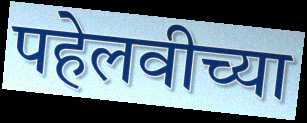
पहेलवीच्या